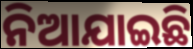
ନିଆଯାଇଛି